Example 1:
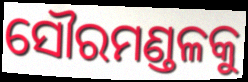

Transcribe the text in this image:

ସୌରମଣ୍ଡଳକୁ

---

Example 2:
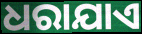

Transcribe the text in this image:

ଧରାଯାଏ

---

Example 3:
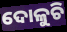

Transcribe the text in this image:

ଦୋଳୁଚି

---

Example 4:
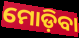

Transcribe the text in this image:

ମୋଡ଼ିବା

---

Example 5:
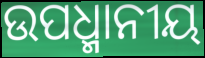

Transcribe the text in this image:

ଉପଧ୍ମାନୀୟ